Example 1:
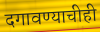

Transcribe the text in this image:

दगावण्याचीही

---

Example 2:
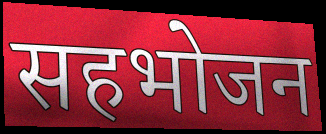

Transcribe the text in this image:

सहभोजन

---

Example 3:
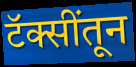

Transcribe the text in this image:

टॅक्सींतून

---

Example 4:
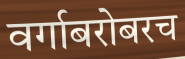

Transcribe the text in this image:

वर्गाबरोबरच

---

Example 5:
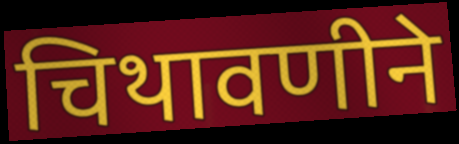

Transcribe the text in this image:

चिथावणीने